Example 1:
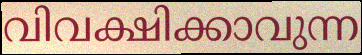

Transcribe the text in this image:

വിവക്ഷിക്കാവുന്ന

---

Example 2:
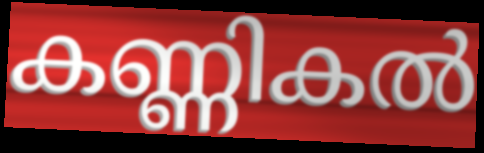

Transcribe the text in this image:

കണ്ണികൽ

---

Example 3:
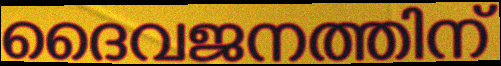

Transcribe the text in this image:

ദൈവജനത്തിന്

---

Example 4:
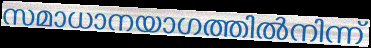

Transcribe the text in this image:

സമാധാനയാഗത്തിൽനിന്ന്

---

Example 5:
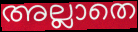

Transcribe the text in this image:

അല്ലാതെ